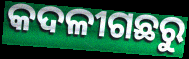
କଦଳୀଗଛରୁ